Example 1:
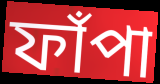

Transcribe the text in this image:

ফাঁপা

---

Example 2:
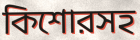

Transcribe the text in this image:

কিশোরসহ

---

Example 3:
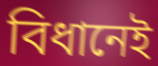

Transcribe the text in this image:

বিধানেই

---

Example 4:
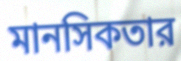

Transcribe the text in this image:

মানসিকতার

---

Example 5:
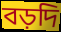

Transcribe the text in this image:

বড়দি